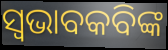
ସ୍ଵଭାବକବିଙ୍କ